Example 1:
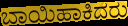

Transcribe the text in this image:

ಬಾಯಿಹಾಕಿದರು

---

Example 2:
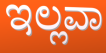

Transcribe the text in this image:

ಇಲ್ಲವಾ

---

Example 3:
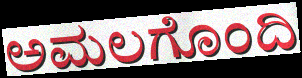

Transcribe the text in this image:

ಅಮಲಗೊಂದಿ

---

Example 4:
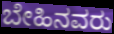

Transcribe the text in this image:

ಬೇಹಿನವರು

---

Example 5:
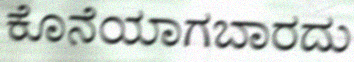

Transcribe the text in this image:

ಕೊನೆಯಾಗಬಾರದು